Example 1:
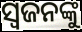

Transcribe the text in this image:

ସ୍ଵଜନଙ୍କୁ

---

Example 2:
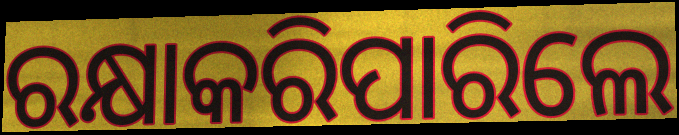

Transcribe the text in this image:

ରକ୍ଷାକରିପାରିଲେ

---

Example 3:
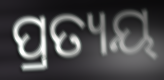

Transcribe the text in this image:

ପ୍ରତ୍ଯୟ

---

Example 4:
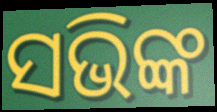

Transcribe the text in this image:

ସଭିଙ୍କ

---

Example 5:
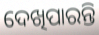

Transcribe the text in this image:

ଦେଖିପାରନ୍ତି